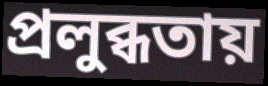
প্রলুব্ধতায়